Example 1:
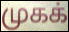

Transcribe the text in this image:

முகக்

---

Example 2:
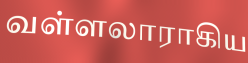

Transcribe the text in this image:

வள்ளலாராகிய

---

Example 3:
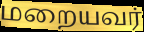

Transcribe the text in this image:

மறையவர்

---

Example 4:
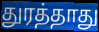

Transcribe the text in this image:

துரத்தாது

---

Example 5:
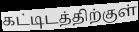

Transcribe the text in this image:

கட்டிடத்திற்குள்